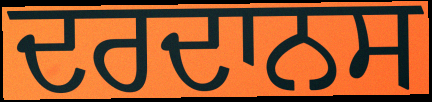
ਦਰਦਾਨਸ